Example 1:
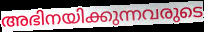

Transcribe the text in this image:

അഭിനയിക്കുന്നവരുടെ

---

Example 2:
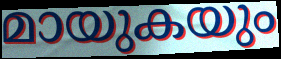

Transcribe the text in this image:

മായുകയും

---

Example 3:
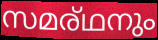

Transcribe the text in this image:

സമര്ഥനും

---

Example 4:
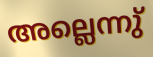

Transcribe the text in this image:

അല്ലെന്നു്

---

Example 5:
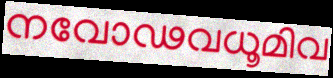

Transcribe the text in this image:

നവോഢവധൂമിവ